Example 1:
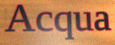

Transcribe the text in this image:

Acqua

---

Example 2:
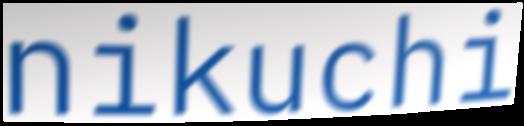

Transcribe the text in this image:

nikuchi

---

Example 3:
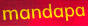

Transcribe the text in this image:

mandapa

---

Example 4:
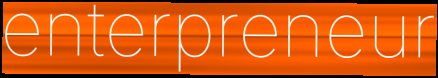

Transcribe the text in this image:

enterpreneur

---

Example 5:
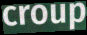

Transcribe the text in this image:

croup